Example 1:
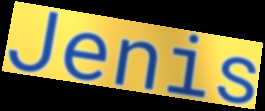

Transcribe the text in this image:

Jenis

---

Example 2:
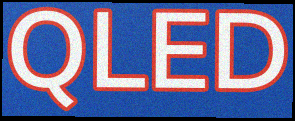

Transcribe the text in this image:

QLED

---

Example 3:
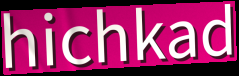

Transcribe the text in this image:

hichkad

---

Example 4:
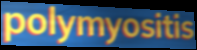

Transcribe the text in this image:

polymyositis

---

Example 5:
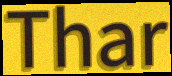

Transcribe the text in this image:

Thar